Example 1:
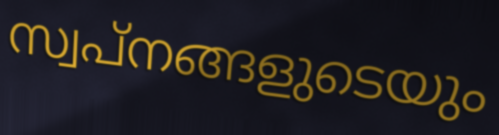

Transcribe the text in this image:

സ്വപ്നങ്ങളുടെയും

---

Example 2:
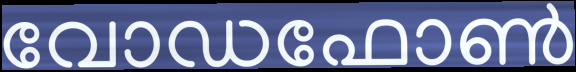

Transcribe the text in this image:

വോഡഫോൺ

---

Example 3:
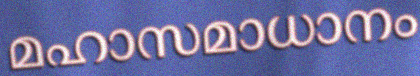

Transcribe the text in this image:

മഹാസമാധാനം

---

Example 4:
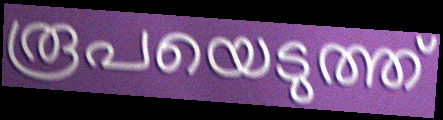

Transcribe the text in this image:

രൂപയെടുത്ത്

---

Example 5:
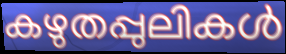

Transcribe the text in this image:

കഴുതപ്പുലികൾ